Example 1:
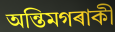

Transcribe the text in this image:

অন্তিমগৰাকী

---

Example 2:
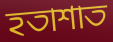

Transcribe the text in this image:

হতাশাত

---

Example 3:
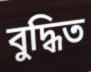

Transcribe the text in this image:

বুদ্ধিত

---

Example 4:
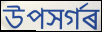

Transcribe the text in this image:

উপসৰ্গৰ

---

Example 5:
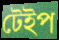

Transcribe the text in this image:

টেইপ